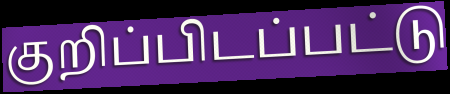
குறிப்பிடப்பட்டு